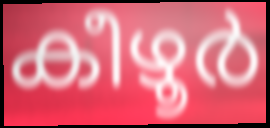
കീഴൂർ